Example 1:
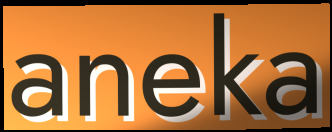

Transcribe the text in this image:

aneka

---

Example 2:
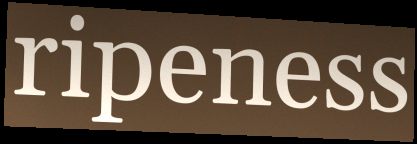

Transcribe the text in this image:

ripeness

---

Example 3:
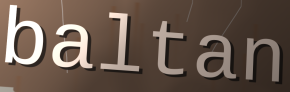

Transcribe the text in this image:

baltan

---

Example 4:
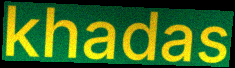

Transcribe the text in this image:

khadas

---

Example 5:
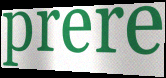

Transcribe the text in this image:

prere